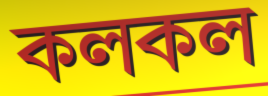
কলকল